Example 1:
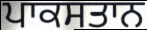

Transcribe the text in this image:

ਪਾਕਸਤਾਨ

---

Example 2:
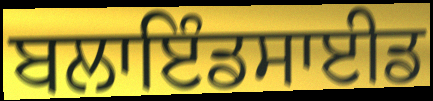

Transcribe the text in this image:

ਬਲਾਇੰਡਸਾਈਡ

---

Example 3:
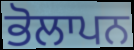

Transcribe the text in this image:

ਭੋਲਾਪਨ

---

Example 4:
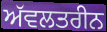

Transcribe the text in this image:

ਅੱਵਲਤਰੀਨ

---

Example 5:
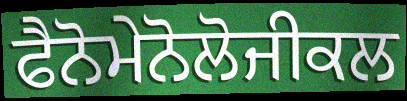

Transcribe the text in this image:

ਫੈਨੋਮੇਨੋਲੋਜੀਕਲ